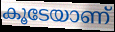
കൂടേയാണ്